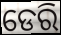
ଡେରି